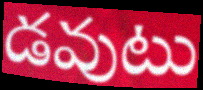
డవుటు